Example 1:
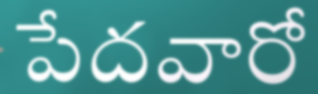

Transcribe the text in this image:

పేదవారో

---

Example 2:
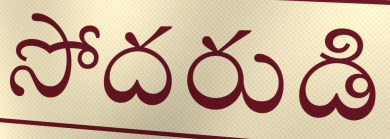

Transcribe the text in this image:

సోదరుడి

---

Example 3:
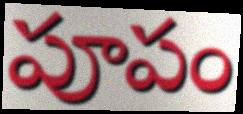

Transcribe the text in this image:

పూపం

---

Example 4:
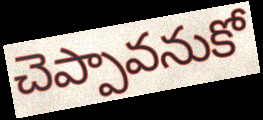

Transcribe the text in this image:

చెప్పావనుకో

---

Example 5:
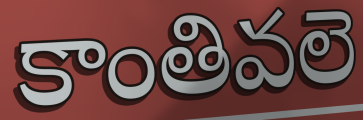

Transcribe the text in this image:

కాంతివలె